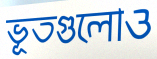
ভূতগুলোও